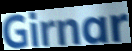
Girnar